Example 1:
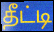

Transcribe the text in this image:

தீட்டி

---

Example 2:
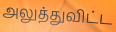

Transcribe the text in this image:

அலுத்துவிட்ட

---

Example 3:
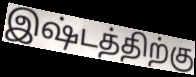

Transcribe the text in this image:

இஷ்டத்திற்கு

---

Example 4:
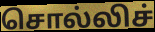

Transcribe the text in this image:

சொல்லிச்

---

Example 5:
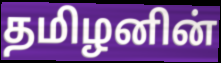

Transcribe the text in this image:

தமிழனின்